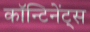
कॉन्टिनेंट्स